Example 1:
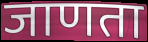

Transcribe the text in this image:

जाणता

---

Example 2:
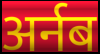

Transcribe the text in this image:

अर्नब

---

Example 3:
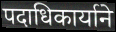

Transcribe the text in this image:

पदाधिकार्याने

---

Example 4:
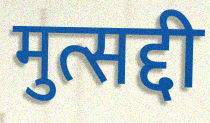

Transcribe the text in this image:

मुत्सद्दी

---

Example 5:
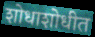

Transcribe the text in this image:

शोधाशोधीत